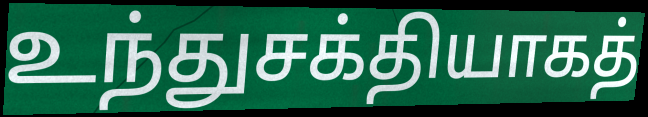
உந்துசக்தியாகத்